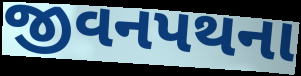
જીવનપથના